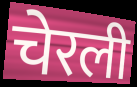
चेरली